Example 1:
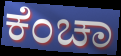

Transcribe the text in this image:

ಕೆಂಚಾ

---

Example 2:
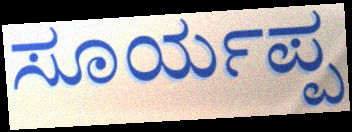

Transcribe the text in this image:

ಸೂರ್ಯಪ್ಪ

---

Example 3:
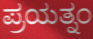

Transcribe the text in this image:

ಪ್ರಯತ್ನಂ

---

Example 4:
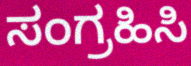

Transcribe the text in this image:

ಸಂಗ್ರಹಿಸಿ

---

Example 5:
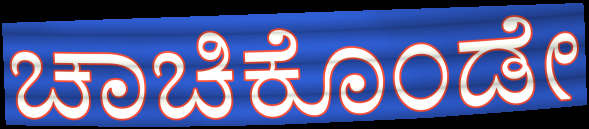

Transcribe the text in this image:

ಚಾಚಿಕೊಂಡೇ